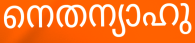
നെതന്യാഹു